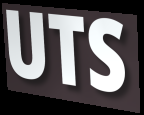
UTS